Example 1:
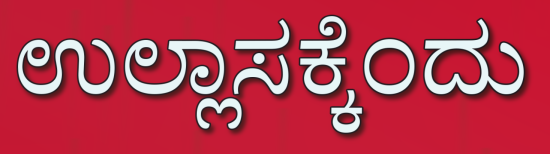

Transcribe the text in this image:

ಉಲ್ಲಾಸಕ್ಕೆಂದು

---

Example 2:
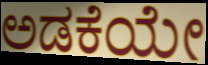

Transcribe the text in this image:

ಅಡಕೆಯೇ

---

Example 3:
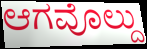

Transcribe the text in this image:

ಆಗವೊಲ್ದು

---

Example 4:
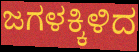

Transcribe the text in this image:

ಜಗಳಕ್ಕಿಳಿದ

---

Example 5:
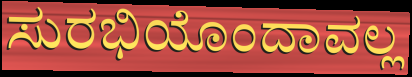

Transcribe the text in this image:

ಸುರಭಿಯೊಂದಾವಲ್ಲ